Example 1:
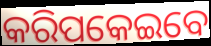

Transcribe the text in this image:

କରିପକେଇବେ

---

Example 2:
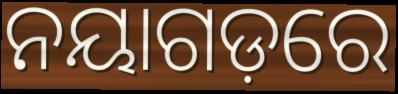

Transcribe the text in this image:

ନୟାଗଡ଼ରେ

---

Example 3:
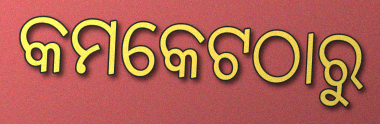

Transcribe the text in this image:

କମକେଟଠାରୁ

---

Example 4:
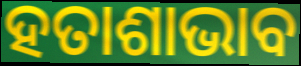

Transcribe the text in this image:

ହତାଶାଭାବ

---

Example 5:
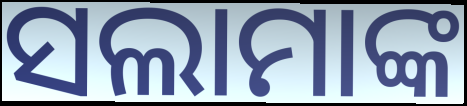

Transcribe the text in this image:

ସଲାମାଙ୍କ